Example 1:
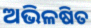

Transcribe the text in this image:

ଅଭିଳଷିତ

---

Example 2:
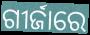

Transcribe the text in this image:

ଗୀର୍ଜାରେ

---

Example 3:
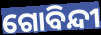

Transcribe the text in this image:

ଗୋବିନ୍ଦୀ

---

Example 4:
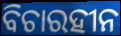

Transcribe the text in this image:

ବିଚାରହୀନ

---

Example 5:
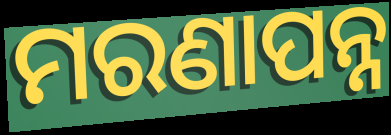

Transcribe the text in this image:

ମରଣାପନ୍ନ